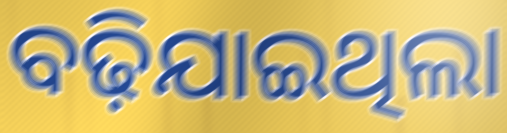
ବଢ଼ିଯାଇଥିଲା